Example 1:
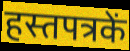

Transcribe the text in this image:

हस्तपत्रकें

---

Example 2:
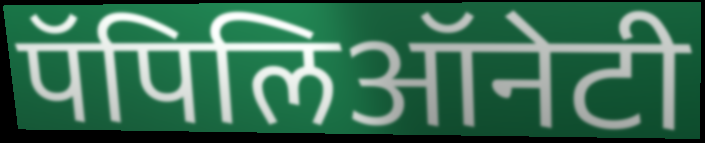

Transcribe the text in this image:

पॅपिलिऑनेटी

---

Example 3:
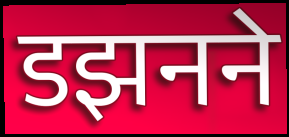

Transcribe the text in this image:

डझनने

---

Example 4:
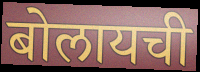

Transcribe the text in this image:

बोलायची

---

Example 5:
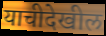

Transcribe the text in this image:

याचीदेखील